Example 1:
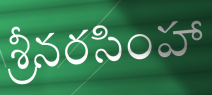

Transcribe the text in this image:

శ్రీనరసింహా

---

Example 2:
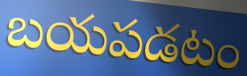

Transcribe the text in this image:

బయపడటం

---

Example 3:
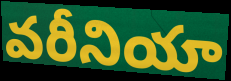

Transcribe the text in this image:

వరీనియా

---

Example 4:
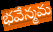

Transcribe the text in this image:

భవేన్మమ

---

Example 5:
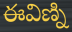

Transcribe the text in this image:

ఈవిణ్ని